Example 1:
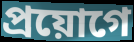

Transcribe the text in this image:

প্রয়োগে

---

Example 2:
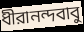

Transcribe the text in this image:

ধীরানন্দবাবু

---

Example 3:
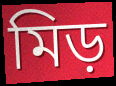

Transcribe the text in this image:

মিড়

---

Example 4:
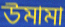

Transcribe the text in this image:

উমামা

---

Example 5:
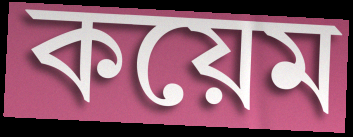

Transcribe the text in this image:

কয়েম